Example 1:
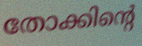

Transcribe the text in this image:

തോക്കിന്റെ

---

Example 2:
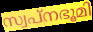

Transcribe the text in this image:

സ്വപ്നഭൂമി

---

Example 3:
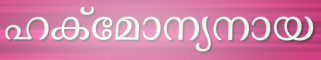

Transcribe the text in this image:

ഹക്മോന്യനായ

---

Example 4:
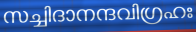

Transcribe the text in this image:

സച്ചിദാനന്ദവിഗ്രഹഃ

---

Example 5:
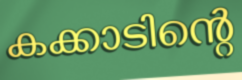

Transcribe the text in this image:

കക്കാടിന്റെ